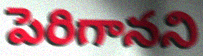
పెరిగానని